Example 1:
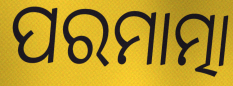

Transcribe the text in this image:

ପରମାତ୍ମା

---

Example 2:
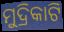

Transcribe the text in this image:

ମୁଦ୍ରିକାଟି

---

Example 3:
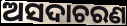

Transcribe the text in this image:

ଅସଦାଚରଣ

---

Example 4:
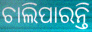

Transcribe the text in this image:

ଚାଲିପାରନ୍ତି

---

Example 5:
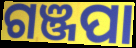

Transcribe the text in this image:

ଗଞ୍ଜପା